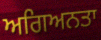
ਅਗਿਅਨਤਾ